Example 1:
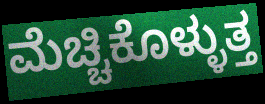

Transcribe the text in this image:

ಮೆಚ್ಚಿಕೊಳ್ಳುತ್ತ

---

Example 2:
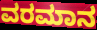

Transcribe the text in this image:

ವರಮಾನ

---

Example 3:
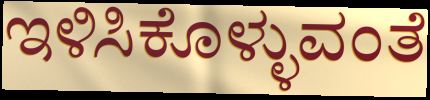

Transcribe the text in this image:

ಇಳಿಸಿಕೊಳ್ಳುವಂತೆ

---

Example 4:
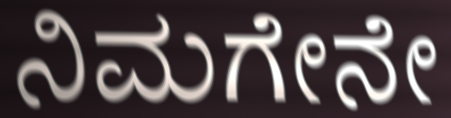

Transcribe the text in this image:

ನಿಮಗೇನೇ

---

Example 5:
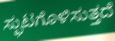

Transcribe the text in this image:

ಸ್ಫುಟಗೊಳಿಸುತ್ತದೆ